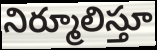
నిర్మూలిస్తూ